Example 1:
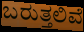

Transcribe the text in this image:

ಬರುತ್ತಲಿವೆ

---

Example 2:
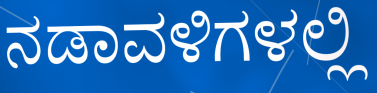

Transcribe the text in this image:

ನಡಾವಳಿಗಳಲ್ಲಿ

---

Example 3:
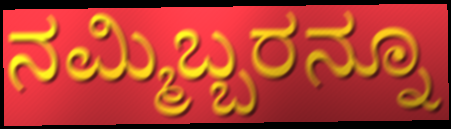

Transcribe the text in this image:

ನಮ್ಮಿಬ್ಬರನ್ನೂ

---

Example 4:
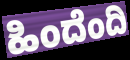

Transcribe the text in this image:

ಹಿಂದೆಂದಿ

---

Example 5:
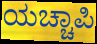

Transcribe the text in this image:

ಯಚ್ಚಾಪಿ